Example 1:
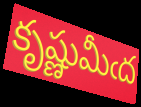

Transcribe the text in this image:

కృష్ణుమీఁద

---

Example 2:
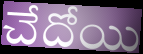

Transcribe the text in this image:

చేదోయి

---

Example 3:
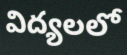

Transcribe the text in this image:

విద్యలలో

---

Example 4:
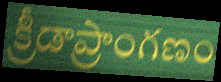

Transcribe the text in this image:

క్రీడాప్రాంగణం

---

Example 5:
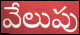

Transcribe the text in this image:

వేలుపు